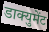
डाक्युमेंट